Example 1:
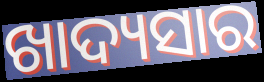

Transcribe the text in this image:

ଖାଦ୍ୟସାର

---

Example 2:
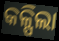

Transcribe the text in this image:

କଳ୍ପିଲା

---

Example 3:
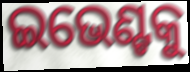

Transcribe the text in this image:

ଇଭେଣ୍ଟକୁ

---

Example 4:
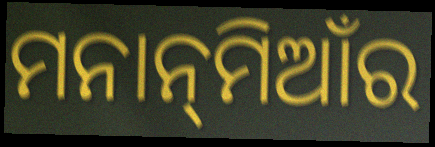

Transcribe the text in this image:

ମନାନ୍‌ମିଆଁର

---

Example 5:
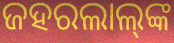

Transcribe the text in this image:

ଜହରଲାଲ୍‌ଙ୍କ